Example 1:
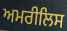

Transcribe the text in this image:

ਅਮਰੀਲਿਸ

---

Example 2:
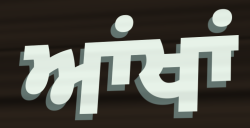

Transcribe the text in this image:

ਆਂਖਾਂ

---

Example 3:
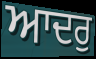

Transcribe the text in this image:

ਆਦਰੁ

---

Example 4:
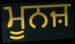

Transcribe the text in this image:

ਮੂਨਜ਼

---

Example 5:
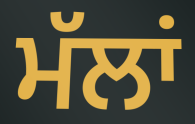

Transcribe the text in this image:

ਮੱਲਾਂ